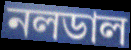
নলডাল